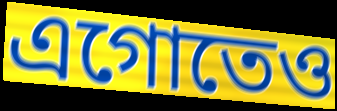
এগোতেও